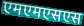
एमएमएसएस